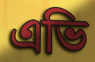
এভি